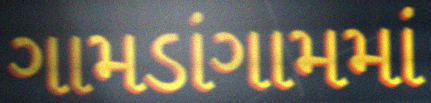
ગામડાંગામમાં